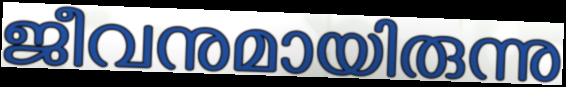
ജീവനുമായിരുന്നു